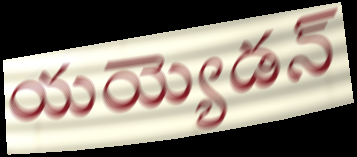
యయ్యెడన్